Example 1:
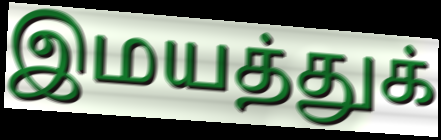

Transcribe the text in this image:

இமயத்துக்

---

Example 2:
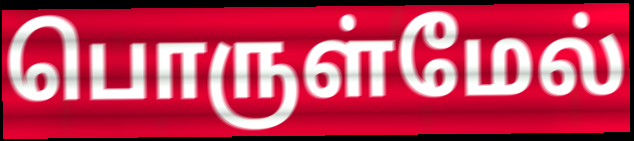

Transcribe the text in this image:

பொருள்மேல்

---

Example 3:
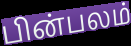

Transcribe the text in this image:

பின்பலம்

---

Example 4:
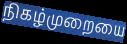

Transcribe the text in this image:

நிகழ்முறையை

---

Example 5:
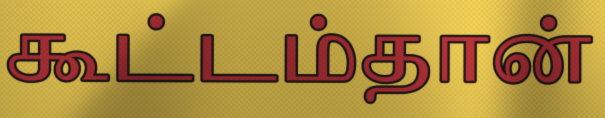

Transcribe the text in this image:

கூட்டம்தான்